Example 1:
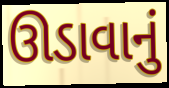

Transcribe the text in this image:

ઊડાવાનું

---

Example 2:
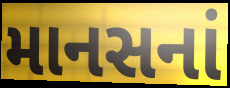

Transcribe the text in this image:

માનસનાં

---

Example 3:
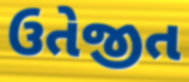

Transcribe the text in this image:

ઉતેજીત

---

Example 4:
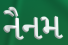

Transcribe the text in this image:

નૈનમ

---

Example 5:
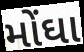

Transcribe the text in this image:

મોંઘા